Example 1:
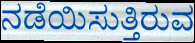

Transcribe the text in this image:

ನಡೆಯಿಸುತ್ತಿರುವ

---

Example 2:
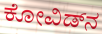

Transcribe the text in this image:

ಕೋವಿಡ್‌ನ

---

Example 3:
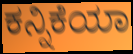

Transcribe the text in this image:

ಕನ್ನಿಕೆಯಾ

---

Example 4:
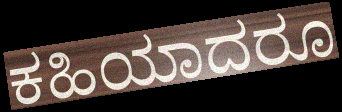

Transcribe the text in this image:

ಕಹಿಯಾದರೂ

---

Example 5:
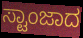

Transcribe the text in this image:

ಸ್ಟಾಂಜಾದ